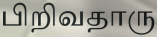
பிறிவதாரு